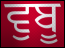
ਵੁਬੂ